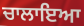
ਚਾਲਾਇਆ